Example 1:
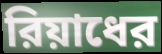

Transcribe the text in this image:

রিয়াধের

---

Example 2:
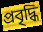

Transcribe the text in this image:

প্রবৃদ্ধি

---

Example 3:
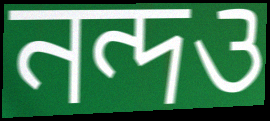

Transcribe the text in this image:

নন্দও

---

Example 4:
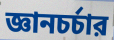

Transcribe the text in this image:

জ্ঞানচর্চার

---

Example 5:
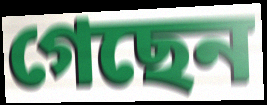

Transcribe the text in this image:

গেছেন